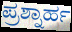
ಪ್ರಶ್ನಾರ್ಹ